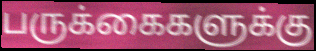
பருக்கைகளுக்கு